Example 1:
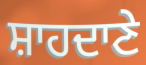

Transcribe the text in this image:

ਸ਼ਾਹਦਾਣੇ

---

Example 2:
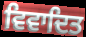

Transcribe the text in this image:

ਵਿਵਾਦਿਤ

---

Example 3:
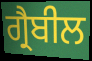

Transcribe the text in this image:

ਗ੍ਰੈਬੀਲ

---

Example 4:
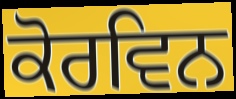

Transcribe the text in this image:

ਕੋਰਵਿਨ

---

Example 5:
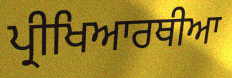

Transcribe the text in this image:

ਪ੍ਰੀਖਿਆਰਥੀਆ